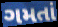
ગમતાં